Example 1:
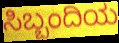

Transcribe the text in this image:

ಸಿಬ್ಬಂದಿಯ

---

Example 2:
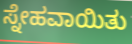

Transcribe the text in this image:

ಸ್ನೇಹವಾಯಿತು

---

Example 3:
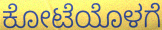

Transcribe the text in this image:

ಕೋಟೆಯೊಳಗೆ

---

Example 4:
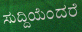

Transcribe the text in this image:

ಸುದ್ದಿಯೆಂದರೆ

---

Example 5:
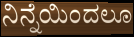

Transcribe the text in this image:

ನಿನ್ನೆಯಿಂದಲೂ